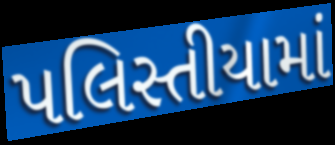
પલિસ્તીયામાં